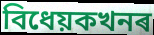
বিধেয়কখনৰ